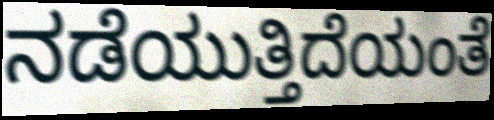
ನಡೆಯುತ್ತಿದೆಯಂತೆ